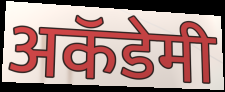
अकॅडेमी